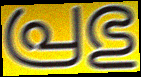
പ്രഭു